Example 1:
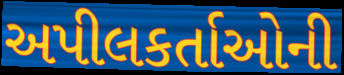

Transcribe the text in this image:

અપીલકર્તાઓની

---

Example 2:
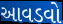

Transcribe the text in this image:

આવડવો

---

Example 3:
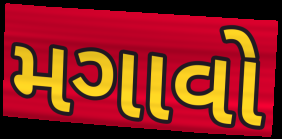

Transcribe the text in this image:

મગાવો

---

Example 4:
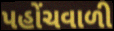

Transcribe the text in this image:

પહોંચવાળી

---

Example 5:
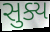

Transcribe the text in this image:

સુક્ય